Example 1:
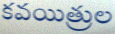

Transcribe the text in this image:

కవయిత్రుల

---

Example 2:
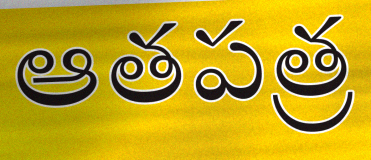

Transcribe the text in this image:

ఆతపత్ర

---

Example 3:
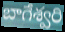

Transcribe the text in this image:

బాగేశ్వరి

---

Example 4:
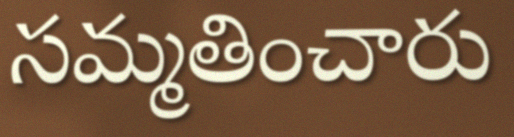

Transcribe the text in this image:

సమ్మతించారు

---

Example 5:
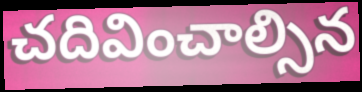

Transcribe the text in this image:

చదివించాల్సిన